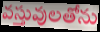
వస్తువులతోను